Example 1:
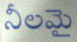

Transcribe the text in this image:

నీలమై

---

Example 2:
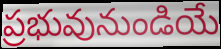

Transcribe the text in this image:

ప్రభువునుండియే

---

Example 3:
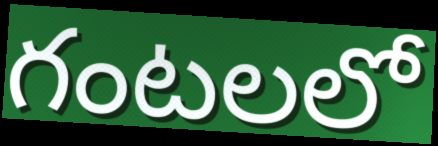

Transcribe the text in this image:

గంటలలో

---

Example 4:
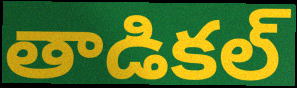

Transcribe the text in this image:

తాడికల్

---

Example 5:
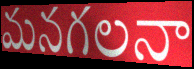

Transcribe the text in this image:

మనగలనా